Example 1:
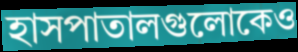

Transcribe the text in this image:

হাসপাতালগুলোকেও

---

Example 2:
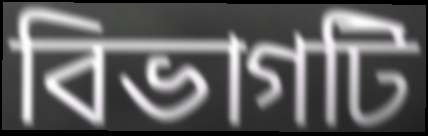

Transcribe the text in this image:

বিভাগটি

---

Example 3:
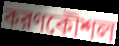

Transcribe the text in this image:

করণকৌশল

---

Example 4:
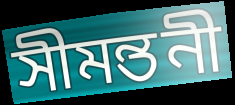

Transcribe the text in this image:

সীমন্তনী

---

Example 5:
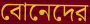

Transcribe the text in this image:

বোনেদের